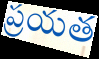
ప్రయత